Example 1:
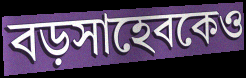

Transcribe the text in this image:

বড়সাহেবকেও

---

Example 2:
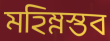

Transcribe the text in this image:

মহিম্নস্তব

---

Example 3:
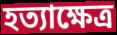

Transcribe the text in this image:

হত্যাক্ষেত্র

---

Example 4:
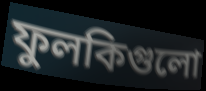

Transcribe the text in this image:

ফুলকিগুলো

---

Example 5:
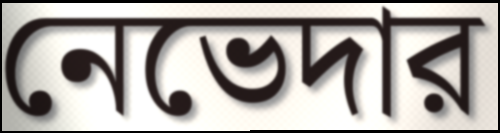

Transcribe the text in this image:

নেভেদার